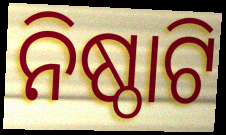
ନିଷ୍ଠାଟି